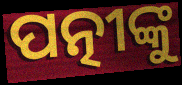
ପତ୍ନୀଙ୍କୁ